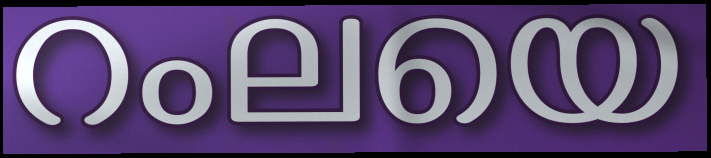
റംലയെ